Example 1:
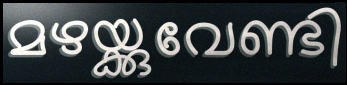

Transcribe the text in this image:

മഴയ്ക്കുവേണ്ടി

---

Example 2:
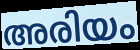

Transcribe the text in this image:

അരിയം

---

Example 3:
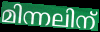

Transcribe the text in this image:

മിന്നലിന്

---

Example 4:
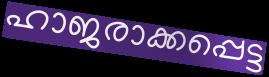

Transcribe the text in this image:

ഹാജരാക്കപ്പെട്ട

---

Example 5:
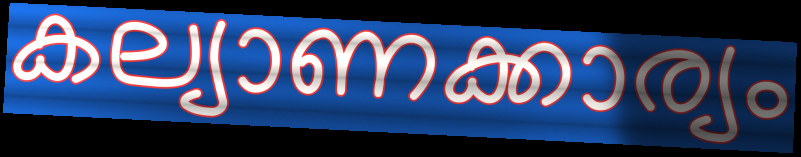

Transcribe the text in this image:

കല്യാണക്കാര്യം